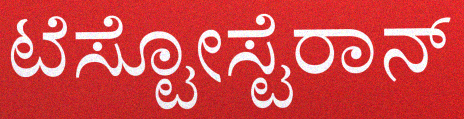
ಟೆಸ್ಟೋಸ್ಟೆರಾನ್